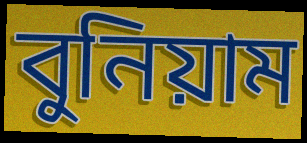
বুনিয়াম